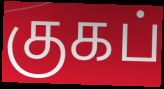
குகப்